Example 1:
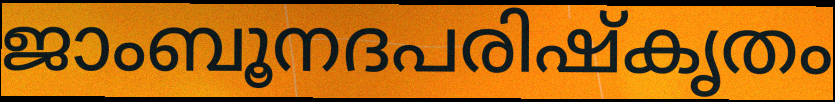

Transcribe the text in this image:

ജാംബൂനദപരിഷ്കൃതം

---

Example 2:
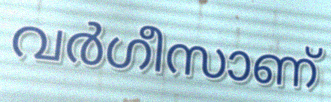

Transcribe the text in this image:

വർഗീസാണ്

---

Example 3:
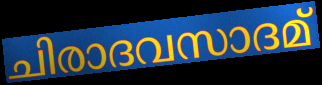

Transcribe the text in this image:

ചിരാദവസാദമ്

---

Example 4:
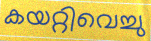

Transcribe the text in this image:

കയറ്റിവെച്ചു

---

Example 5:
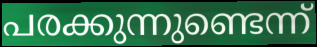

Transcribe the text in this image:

പരക്കുന്നുണ്ടെന്ന്